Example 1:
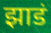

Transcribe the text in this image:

झाडं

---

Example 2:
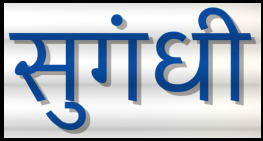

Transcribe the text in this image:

सुगंधी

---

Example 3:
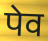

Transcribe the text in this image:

पेव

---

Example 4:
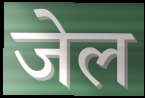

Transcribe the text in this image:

जेल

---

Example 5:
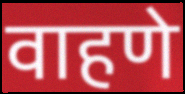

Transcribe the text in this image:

वाहणे